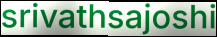
srivathsajoshi